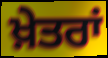
ਖ਼ੇਤਰਾਂ